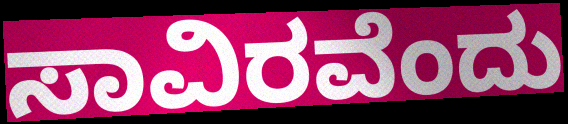
ಸಾವಿರವೆಂದು